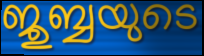
ജുബ്ബയുടെ